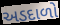
અડદાળો